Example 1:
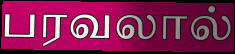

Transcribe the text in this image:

பரவலால்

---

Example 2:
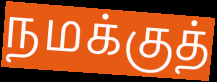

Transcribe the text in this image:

நமக்குத்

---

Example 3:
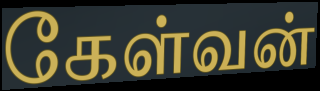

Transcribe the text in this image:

கேள்வன்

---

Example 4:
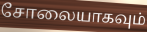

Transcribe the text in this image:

சோலையாகவும்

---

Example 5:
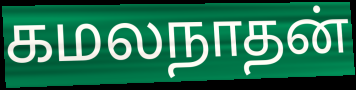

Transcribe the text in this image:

கமலநாதன்